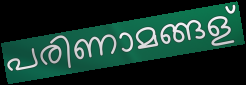
പരിണാമങ്ങള്